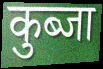
कुब्जा